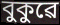
বুকুৱে